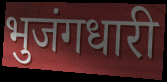
भुजंगधारी